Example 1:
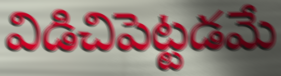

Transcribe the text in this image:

విడిచిపెట్టడమే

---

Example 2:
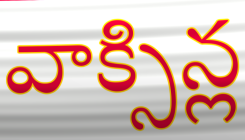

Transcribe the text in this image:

వాక్సిన్ల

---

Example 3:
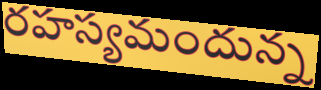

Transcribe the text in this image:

రహస్యమందున్న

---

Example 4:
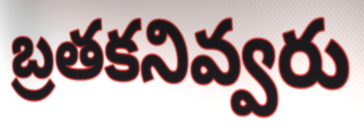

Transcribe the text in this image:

బ్రతకనివ్వరు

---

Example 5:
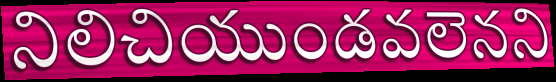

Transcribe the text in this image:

నిలిచియుండవలెనని